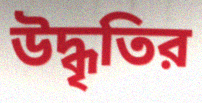
উদ্ধৃতির